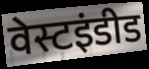
वेस्टइंडीड